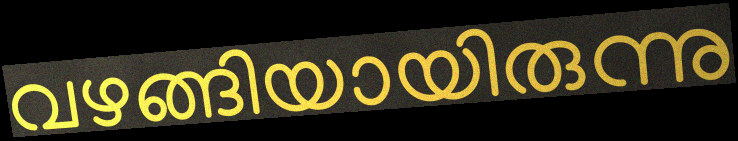
വഴങ്ങിയായിരുന്നു